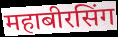
महाबीरसिंग